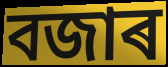
বজাৰ